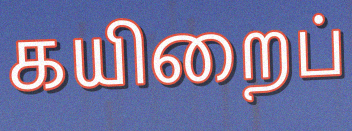
கயிறைப்